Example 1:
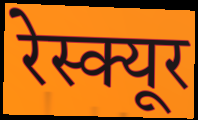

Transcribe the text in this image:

रेस्क्यूर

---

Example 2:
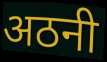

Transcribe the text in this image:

अठनी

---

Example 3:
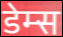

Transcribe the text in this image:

डेम्स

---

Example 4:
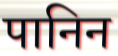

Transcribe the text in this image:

पानिन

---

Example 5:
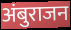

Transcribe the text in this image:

अंबुराजन